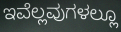
ಇವೆಲ್ಲವುಗಳಲ್ಲೂ